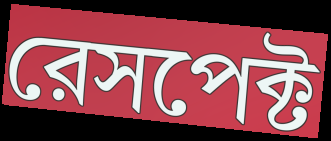
রেসপেক্ট